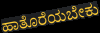
ಹಾತೊರೆಯಬೇಕು